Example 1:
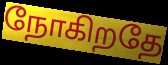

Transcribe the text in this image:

நோகிறதே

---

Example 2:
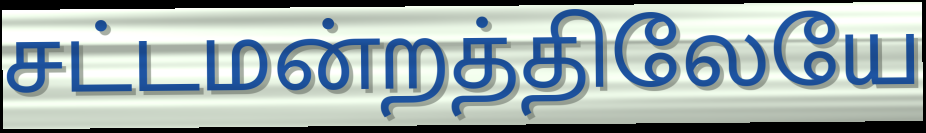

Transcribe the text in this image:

சட்டமன்றத்திலேயே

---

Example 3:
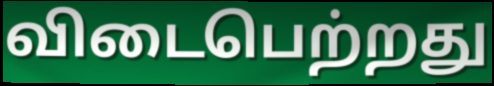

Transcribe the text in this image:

விடைபெற்றது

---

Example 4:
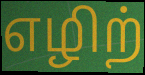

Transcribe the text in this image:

எழிற்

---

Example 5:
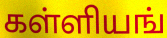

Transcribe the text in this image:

கள்ளியங்